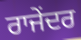
ਰਾਜੇਂਦਰ